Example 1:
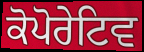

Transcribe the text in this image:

ਕੋਪੋਰੇਟਿਵ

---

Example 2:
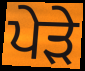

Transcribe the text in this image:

ਪੇੜੇ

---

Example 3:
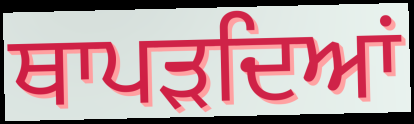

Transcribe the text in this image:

ਥਾਪੜਦਿਆਂ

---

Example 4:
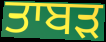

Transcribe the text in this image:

ਤਾਬੜ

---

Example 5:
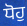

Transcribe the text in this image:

ਧੋਹੁ